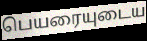
பெயரையுடைய